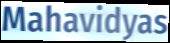
Mahavidyas